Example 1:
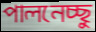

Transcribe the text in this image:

পালনেচ্ছু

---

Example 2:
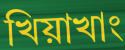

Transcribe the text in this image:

খিয়াখাং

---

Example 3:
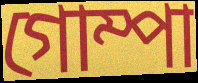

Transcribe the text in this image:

গোম্পা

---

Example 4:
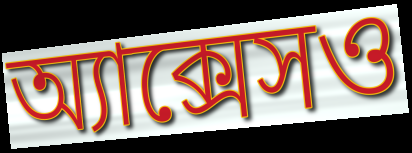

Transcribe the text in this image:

অ্যাক্সেসও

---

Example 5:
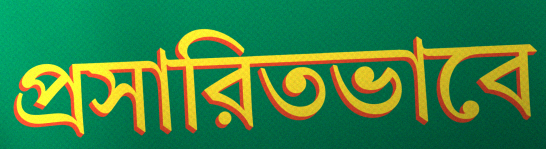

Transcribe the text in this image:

প্রসারিতভাবে